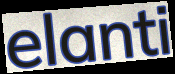
elanti